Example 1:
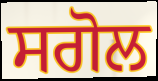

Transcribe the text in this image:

ਸਗੋਲ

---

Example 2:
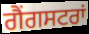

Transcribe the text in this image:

ਗੈਂਗਸਟਰਾਂ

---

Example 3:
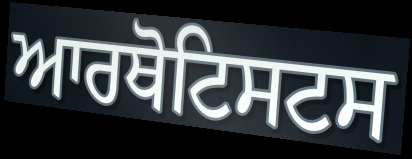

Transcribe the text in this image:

ਆਰਥੋਟਿਸਟਸ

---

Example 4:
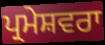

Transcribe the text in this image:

ਪ੍ਰਮੇਸ਼ਵਰਾ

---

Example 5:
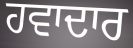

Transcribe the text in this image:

ਹਵਾਦਾਰ